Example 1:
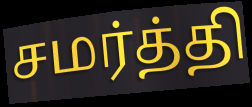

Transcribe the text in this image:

சமர்த்தி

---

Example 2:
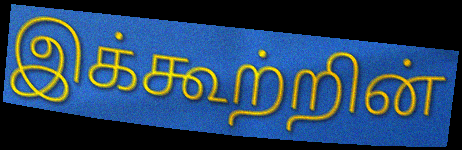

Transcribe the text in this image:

இக்கூற்றின்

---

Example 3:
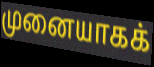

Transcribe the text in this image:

முனையாகக்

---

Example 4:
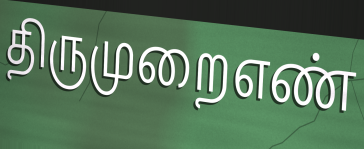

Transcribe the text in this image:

திருமுறைஎண்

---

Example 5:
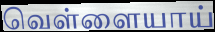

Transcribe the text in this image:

வெள்ளையாய்